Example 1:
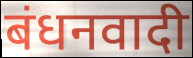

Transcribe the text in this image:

बंधनवादी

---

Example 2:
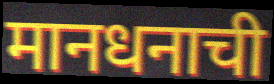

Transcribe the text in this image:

मानधनाची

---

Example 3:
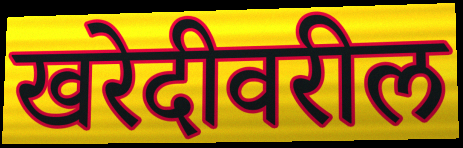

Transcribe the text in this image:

खरेदीवरील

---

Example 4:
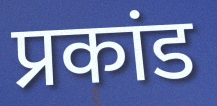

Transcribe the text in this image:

प्रकांड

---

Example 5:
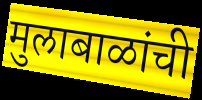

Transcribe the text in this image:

मुलाबाळांची